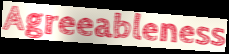
Agreeableness